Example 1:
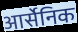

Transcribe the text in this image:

आर्सेनिक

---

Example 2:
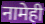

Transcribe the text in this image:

नामेही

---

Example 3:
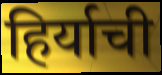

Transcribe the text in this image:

हिर्याची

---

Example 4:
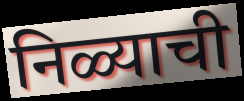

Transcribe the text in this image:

निळ्याची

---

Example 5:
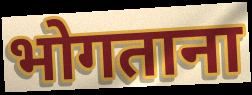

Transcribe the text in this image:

भोगताना